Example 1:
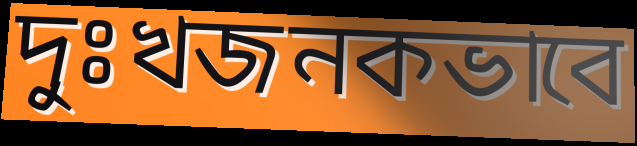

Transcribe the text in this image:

দুঃখজনকভাবে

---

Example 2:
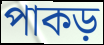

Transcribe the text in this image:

পাকড়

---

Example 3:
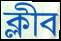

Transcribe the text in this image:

ক্লীব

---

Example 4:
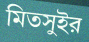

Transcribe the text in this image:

মিতসুইর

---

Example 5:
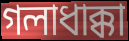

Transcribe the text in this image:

গলাধাক্কা